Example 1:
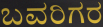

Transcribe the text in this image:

ಬವರಿಗರ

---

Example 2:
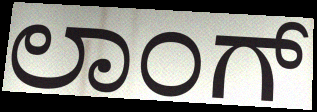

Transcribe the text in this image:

ಲಾಂಗ್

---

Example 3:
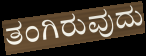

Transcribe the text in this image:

ತಂಗಿರುವುದು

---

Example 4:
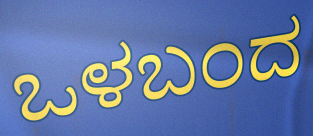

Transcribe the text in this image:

ಒಳಬಂದ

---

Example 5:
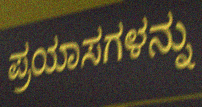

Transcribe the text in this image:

ಪ್ರಯಾಸಗಳನ್ನು